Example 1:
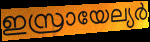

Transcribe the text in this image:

ഇസ്രായേല്യർ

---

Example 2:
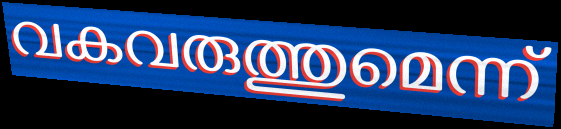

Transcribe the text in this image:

വകവരുത്തുമെന്ന്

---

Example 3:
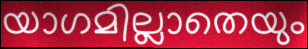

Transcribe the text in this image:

യാഗമില്ലാതെയും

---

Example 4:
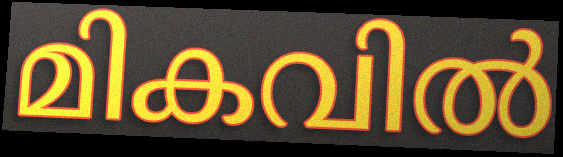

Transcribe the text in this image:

മികവിൽ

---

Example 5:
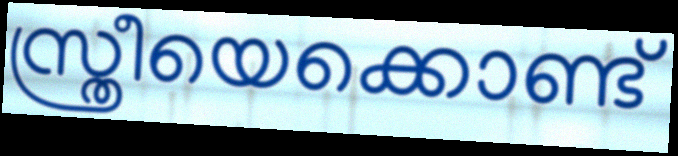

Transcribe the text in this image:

സ്ത്രീയെക്കൊണ്ട്